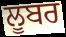
ਲੂਬਰ